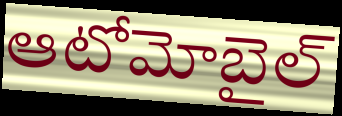
ఆటోమోబైల్